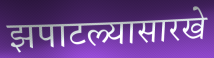
झपाटल्यासारखे